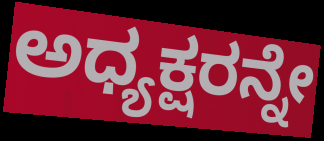
ಅಧ್ಯಕ್ಷರನ್ನೇ